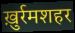
ख़ुर्रमशहर